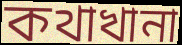
কথাখানা